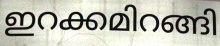
ഇറക്കമിറങ്ങി